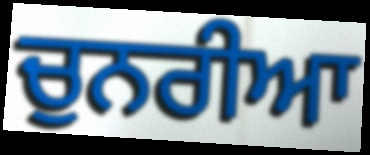
ਚੁਨਰੀਆ